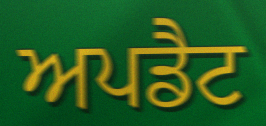
ਅਪਡੈਟ